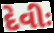
દેવીઃ